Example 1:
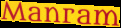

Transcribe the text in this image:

Manram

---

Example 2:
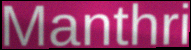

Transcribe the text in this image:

Manthri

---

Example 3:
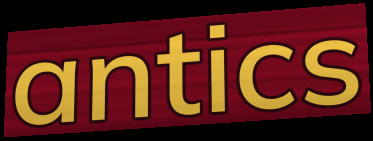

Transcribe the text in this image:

antics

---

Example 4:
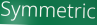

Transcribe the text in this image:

Symmetric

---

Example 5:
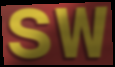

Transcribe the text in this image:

sw